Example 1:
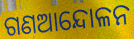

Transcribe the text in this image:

ଗଣଆନ୍ଦୋଳନ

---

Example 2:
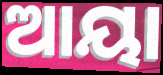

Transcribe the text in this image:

ଆୟା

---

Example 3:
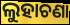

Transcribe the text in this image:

ଲୁହାଚଣା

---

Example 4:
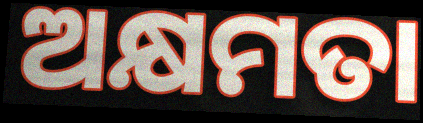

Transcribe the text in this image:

ଅକ୍ଷମତା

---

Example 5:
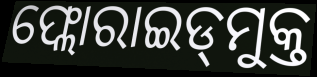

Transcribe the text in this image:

ଫ୍ଲୋରାଇଡ୍‌ମୁକ୍ତ